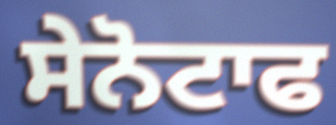
ਸੇਨੋਟਾਫ